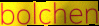
bolchen